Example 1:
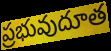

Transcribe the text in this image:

ప్రభువుదూత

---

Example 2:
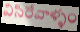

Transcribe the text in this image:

విసిరేవాళ్ళం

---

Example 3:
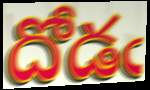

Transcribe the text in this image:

దోడఁ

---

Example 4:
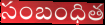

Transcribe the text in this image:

సంబంధిత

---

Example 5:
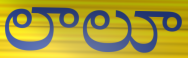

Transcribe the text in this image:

లాలూ